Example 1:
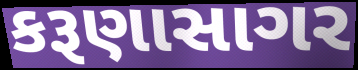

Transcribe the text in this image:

કરૂણાસાગર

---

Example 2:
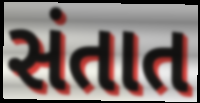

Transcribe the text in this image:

સંતાત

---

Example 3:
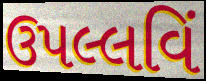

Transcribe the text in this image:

ઉપલ્લવિં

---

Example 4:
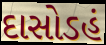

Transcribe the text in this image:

દાસોઽહં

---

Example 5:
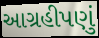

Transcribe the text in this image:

આગ્રહીપણું